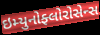
ઇમ્યુનોફ્લોરોસેન્સ